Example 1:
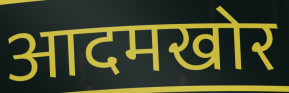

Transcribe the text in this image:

आदमखोर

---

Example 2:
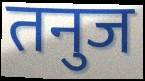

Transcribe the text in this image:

तनुज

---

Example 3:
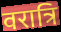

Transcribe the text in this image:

वरात्रि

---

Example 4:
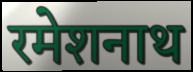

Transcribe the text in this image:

रमेशनाथ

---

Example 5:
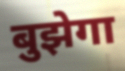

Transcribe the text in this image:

बुझेगा